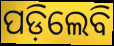
ପଡ଼ିଲେବି